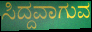
ಸಿದ್ದವಾಗುವ